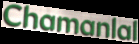
Chamanlal